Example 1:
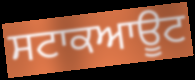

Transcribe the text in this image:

ਸਟਾਕਆਊਟ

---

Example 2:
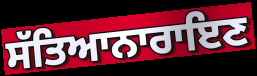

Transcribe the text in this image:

ਸੱਤਿਆਨਾਰਾਇਣ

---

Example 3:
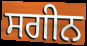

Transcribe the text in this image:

ਸਗੀਨ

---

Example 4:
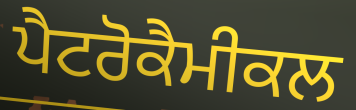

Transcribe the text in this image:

ਪੈਟਰੋਕੈਮੀਕਲ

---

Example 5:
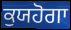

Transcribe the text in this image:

ਕੁਯਹੋਗਾ